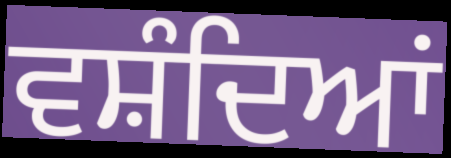
ਵਸ਼ੰਦਿਆਂ